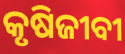
କୃଷିଜୀବୀ